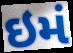
ઇમં